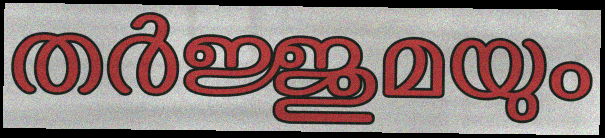
തർജ്ജുമയും